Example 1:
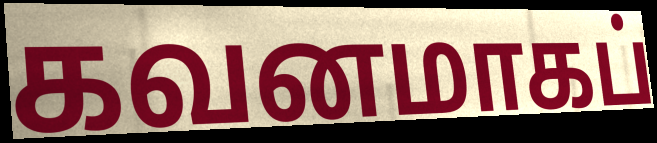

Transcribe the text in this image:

கவனமாகப்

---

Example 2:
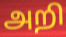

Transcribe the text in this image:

அறி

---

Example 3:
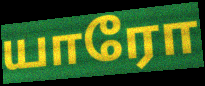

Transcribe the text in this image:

யாரோ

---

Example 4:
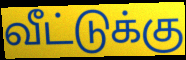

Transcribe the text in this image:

வீட்டுக்கு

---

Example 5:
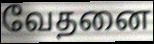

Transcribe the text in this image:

வேதனை